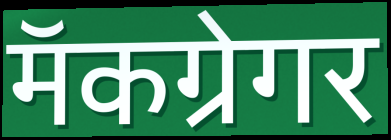
मॅकग्रेगर